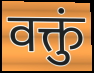
वक्तुं